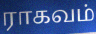
ராகவம்